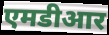
एमडीआर